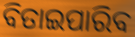
ବିତାଇପାରିବ